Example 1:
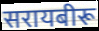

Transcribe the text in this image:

सरायबीरू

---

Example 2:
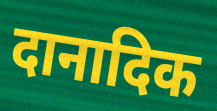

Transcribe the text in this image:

दानादिक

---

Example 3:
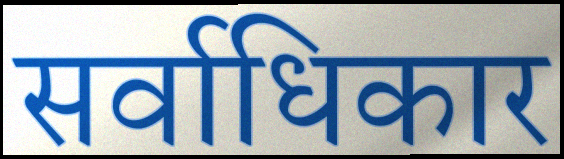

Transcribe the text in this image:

सर्वाधिकार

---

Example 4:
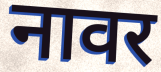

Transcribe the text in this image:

नावर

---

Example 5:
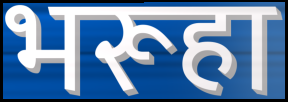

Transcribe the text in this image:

भरूहा